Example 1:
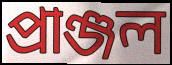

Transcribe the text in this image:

প্ৰাঞ্জল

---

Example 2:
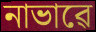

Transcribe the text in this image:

নাভাৱে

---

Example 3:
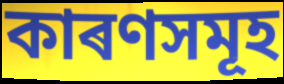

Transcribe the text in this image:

কাৰণসমূহ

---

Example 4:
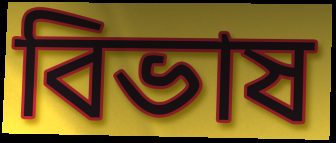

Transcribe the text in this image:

বিভাষ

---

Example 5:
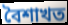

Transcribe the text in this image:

বৈশাখত